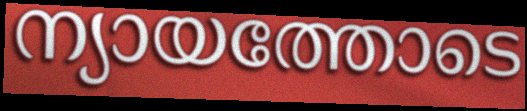
ന്യായത്തോടെ